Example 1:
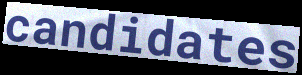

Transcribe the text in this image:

candidates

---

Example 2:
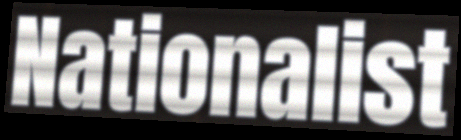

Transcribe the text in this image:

Nationalist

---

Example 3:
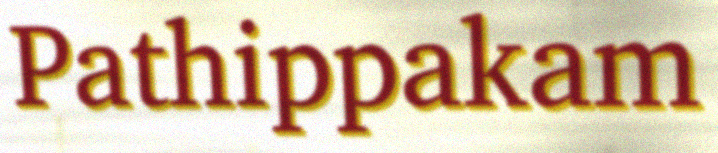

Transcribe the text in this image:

Pathippakam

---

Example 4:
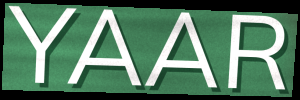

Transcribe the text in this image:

YAAR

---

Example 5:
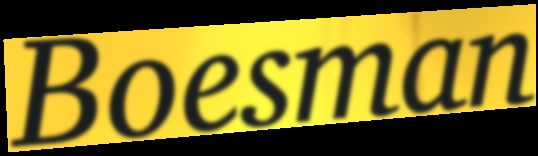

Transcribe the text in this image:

Boesman